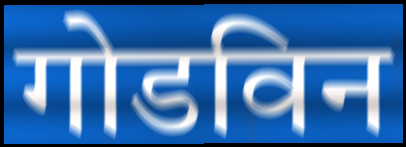
गोडविन